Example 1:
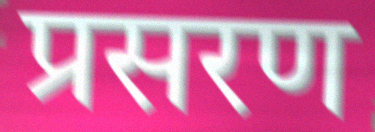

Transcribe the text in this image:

प्रसरण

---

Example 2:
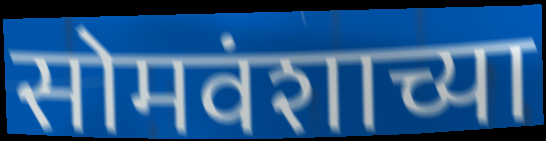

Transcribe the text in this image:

सोमवंशाच्या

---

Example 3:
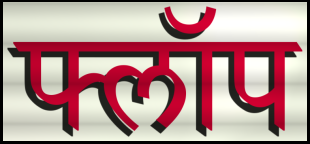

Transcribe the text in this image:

फ्लॉप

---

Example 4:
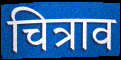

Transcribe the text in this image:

चित्राव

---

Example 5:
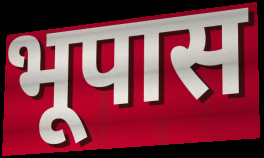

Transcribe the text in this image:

भूपास